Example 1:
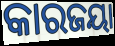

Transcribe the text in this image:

କାରଜୟା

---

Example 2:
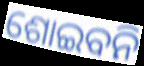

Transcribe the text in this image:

ଶୋଇବନି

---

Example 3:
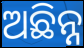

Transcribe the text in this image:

ଅଛିନ୍ନ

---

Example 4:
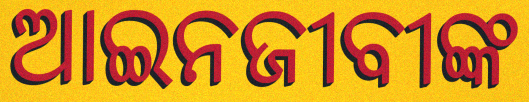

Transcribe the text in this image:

ଆଇନଜୀବୀଙ୍କ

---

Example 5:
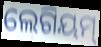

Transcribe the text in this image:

ଲେଗିୟମ୍